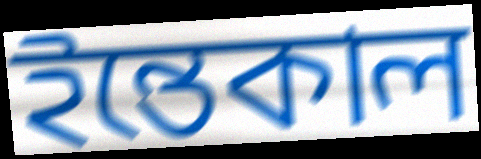
ইন্তেকাল